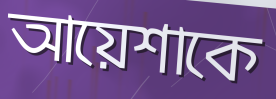
আয়েশাকে